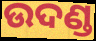
ଉଦଣ୍ଡ